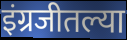
इंग्रजीतल्या